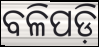
ବଳିପଡ଼ି